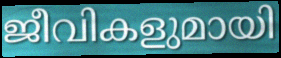
ജീവികളുമായി